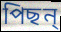
পিছন্